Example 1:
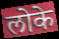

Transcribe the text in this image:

लोके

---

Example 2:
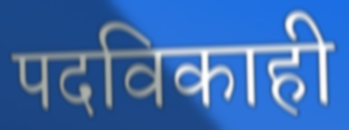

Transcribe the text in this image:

पदविकाही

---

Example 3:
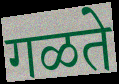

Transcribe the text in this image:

गळते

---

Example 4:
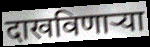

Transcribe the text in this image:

दाखविणाऱ्या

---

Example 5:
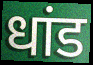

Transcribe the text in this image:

धांड